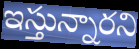
ఇస్తున్నారని